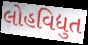
લોહવિદ્યુત